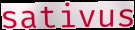
sativus